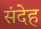
संदेह